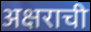
अक्षराची